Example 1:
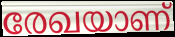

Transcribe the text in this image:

രേഖയാണ്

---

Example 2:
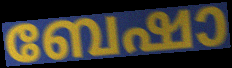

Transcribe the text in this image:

ബേഷാ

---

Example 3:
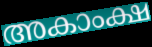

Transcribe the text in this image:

അകാംക്ഷ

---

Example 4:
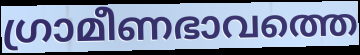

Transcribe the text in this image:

ഗ്രാമീണഭാവത്തെ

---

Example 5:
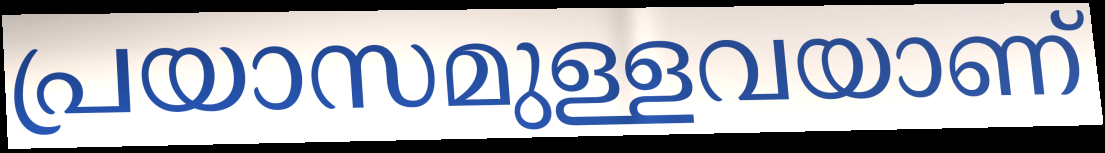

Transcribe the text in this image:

പ്രയാസമുള്ളവയാണ്